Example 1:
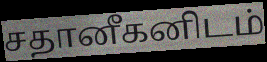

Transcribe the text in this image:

சதானீகனிடம்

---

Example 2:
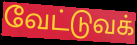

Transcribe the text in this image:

வேட்டுவக்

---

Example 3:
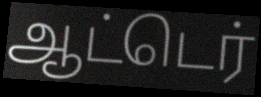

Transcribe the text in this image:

ஆட்டெர்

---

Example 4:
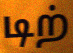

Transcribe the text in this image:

டிற்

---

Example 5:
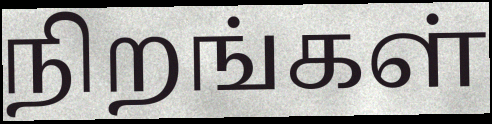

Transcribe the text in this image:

நிறங்கள்